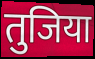
तुजिया